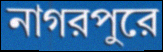
নাগরপুরে